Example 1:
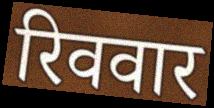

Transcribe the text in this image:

रिववार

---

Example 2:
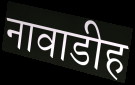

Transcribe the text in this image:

नावाडीह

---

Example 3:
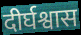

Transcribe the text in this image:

दीर्घश्वास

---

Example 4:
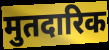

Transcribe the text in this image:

मुतदारिक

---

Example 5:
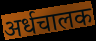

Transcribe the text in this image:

अर्धचालक